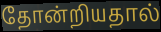
தோன்றியதால்